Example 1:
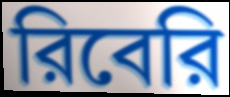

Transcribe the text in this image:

রিবেরি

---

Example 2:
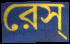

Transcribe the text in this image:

রেস্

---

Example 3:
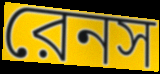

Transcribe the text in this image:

রেনস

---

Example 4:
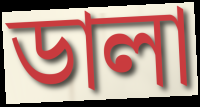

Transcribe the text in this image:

ডালা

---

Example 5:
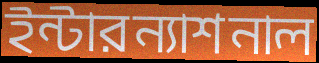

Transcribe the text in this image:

ইন্টারন্যাশনাল